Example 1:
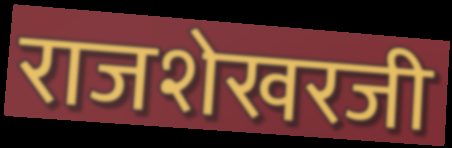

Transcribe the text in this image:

राजशेखरजी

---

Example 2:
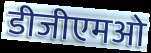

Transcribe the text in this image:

डीजीएमओ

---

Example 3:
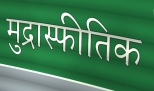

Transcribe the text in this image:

मुद्रास्फीतिक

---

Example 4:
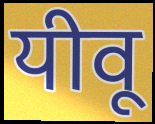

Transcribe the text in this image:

यीवू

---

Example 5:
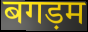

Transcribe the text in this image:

बगड़म